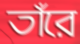
তাঁরে